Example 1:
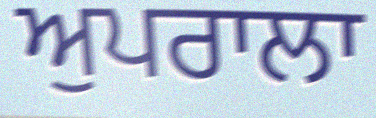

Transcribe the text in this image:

ਅੁਪਰਾਲਾ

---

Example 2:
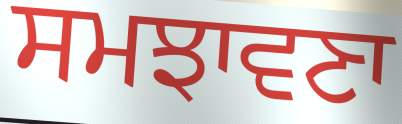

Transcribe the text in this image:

ਸਮਝਾਵਣਾ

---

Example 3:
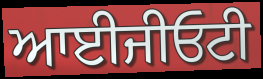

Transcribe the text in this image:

ਆਈਜੀਓਟੀ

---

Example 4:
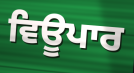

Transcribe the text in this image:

ਵਿਊਪਾਰ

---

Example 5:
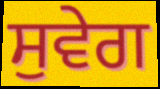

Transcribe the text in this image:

ਸੁਵੇਗ